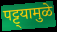
पट्ट्यामुळे